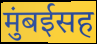
मुंबईसह